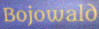
Bojowald